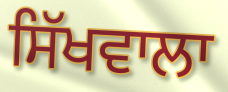
ਸਿੱਖਵਾਲਾ